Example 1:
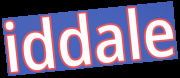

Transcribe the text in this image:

iddale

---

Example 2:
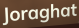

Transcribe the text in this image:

Joraghat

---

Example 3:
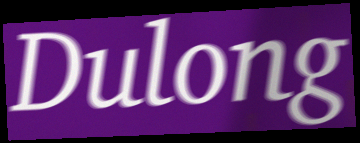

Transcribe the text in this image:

Dulong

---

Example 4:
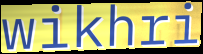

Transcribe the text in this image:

wikhri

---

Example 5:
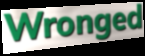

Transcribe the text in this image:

Wronged